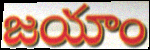
జయాం